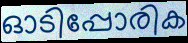
ഓടിപ്പോരിക